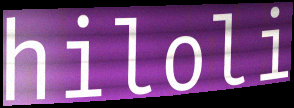
hiloli